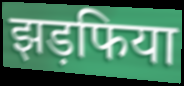
झड़फिया